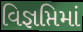
વિજ્ઞપ્તિમાં